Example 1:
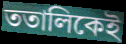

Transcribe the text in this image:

ততালিকেই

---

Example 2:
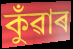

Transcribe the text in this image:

কুঁৱাৰ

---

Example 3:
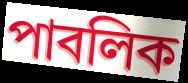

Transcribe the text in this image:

পাবলিক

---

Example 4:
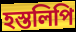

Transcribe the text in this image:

হস্তলিপি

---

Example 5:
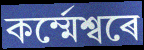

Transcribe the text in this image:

কৰ্ম্মেশ্বৰে